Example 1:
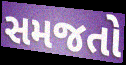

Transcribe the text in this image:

સમજતો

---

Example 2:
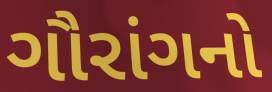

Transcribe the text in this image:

ગૌરાંગનો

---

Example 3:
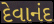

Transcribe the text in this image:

દેવાનંદ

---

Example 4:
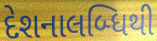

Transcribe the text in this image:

દેશનાલબ્ધિથી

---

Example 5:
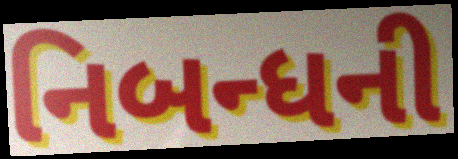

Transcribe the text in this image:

નિબન્ધની